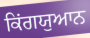
ਕਿਂਗਯੁਆਨ